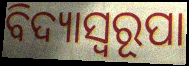
ବିଦ୍ୟାସ୍ୱରୂପା